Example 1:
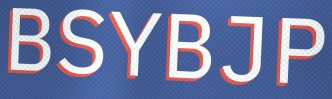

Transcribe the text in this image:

BSYBJP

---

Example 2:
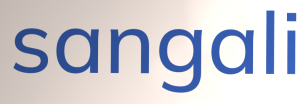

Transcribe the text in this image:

sangali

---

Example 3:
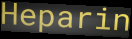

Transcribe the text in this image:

Heparin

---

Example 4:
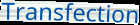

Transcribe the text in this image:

Transfection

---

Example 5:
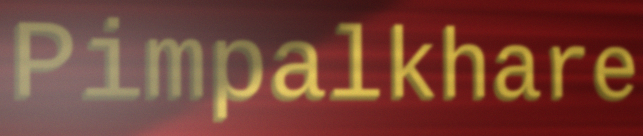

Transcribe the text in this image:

Pimpalkhare